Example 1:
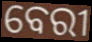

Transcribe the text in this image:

ବେରୀ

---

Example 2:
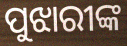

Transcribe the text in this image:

ପୁଝାରୀଙ୍କ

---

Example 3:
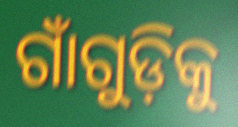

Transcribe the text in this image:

ଗାଁଗୁଡ଼ିକୁ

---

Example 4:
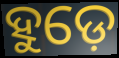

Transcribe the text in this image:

ହୁଡ଼େ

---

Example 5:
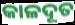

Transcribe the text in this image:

କାଳଦୂତ